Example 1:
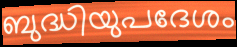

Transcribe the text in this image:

ബുദ്ധിയുപദേശം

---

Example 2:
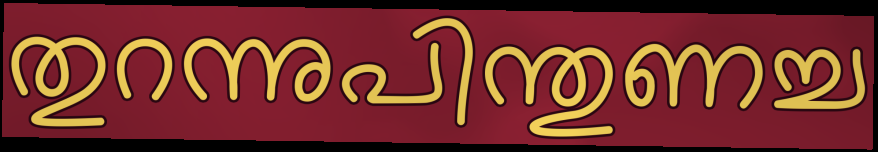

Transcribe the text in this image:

തുറന്നുപിന്തുണച്ച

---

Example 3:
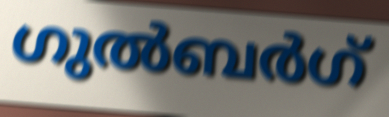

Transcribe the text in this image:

ഗുൽബർഗ്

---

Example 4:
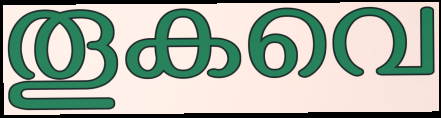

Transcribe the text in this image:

തൂകവെ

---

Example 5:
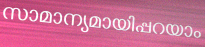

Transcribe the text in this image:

സാമാന്യമായിപ്പറയാം